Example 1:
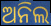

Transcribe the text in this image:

ଅନିଲ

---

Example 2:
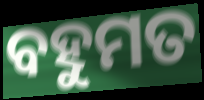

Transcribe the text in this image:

ବହୁମତ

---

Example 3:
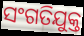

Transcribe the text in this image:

ସଂଗତିଯୁକ୍ତ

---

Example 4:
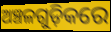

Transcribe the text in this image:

ଅଞ୍ଚଳଗୁଡ଼ିକରେ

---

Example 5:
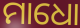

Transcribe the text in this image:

ମାଧୋ